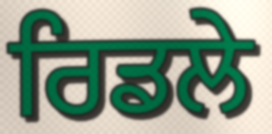
ਰਿਡਲੇ